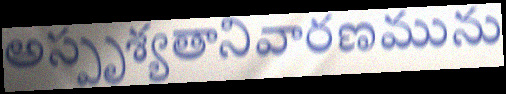
అస్పృశ్యతానివారణమును